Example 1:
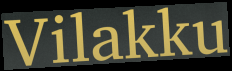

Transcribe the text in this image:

Vilakku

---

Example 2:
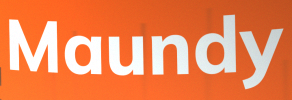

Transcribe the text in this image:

Maundy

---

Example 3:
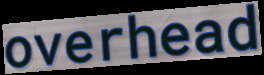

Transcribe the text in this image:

overhead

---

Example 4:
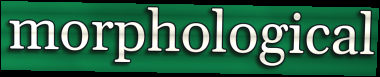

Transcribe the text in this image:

morphological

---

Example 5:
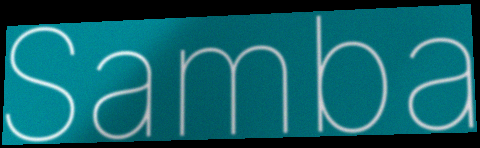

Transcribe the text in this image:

Samba